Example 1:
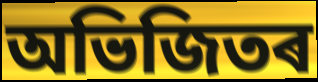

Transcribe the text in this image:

অভিজিতৰ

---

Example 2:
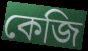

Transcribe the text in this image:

কেজি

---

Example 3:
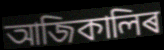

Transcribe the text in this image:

আজিকালিৰ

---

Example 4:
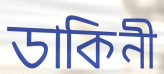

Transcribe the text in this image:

ডাকিনী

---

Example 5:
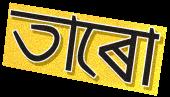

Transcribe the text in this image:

তাৰো